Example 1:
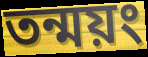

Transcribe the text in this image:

তন্ময়ং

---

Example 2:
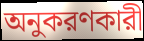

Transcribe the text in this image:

অনুকরণকারী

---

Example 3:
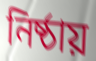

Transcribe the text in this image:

নিষ্ঠায়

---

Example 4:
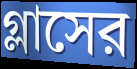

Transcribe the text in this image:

গ্লাসের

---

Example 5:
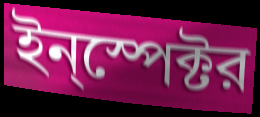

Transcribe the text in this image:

ইন্‌স্পেক্টর